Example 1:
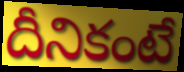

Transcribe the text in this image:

దీనికంటే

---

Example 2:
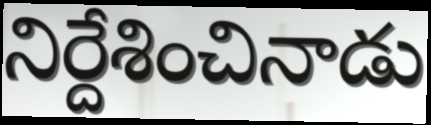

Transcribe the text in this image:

నిర్దేశించినాడు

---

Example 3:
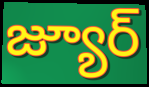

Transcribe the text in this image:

జ్యూర్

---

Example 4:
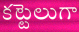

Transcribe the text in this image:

కట్టెలుగా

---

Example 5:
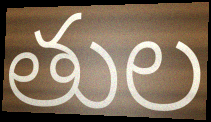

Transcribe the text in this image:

తుల